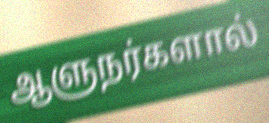
ஆளுநர்களால்